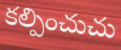
కల్పించుచు